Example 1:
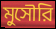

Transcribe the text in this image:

মুসৌরি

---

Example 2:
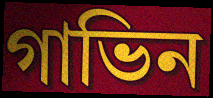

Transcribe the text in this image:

গাভিন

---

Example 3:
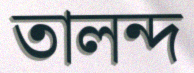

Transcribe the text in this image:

তালন্দ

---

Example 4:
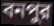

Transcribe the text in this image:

বনপুর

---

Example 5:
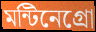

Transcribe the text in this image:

মন্টিনেগ্রো